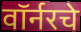
वॉर्नरचे